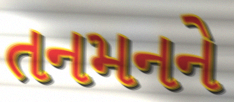
તનમનને